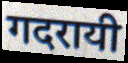
गदरायी